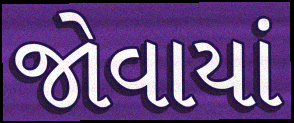
જોવાયાં